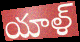
యాళ్